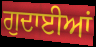
ਗੁਦਾਈਆਂ